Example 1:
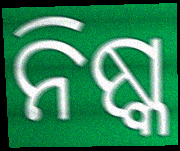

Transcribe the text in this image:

ନିଷ୍କ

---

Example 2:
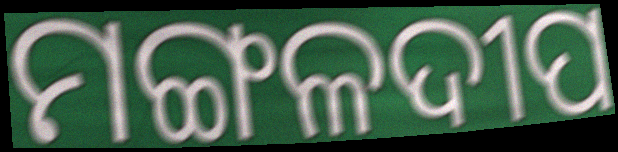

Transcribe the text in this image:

ମଙ୍ଗଳଦୀପ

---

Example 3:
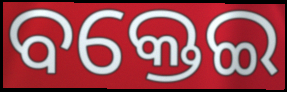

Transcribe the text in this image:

ବକ୍ତେଇ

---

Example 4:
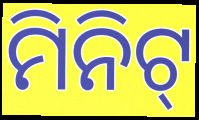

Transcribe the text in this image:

ମିନିଟ୍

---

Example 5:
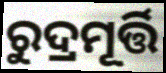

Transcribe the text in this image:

ରୁଦ୍ରମୂର୍ତ୍ତି